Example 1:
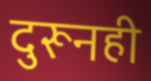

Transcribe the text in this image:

दुरूनही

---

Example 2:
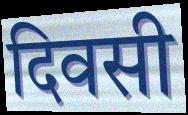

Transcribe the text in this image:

दिवसी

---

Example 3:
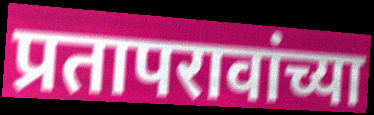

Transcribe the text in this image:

प्रतापरावांच्या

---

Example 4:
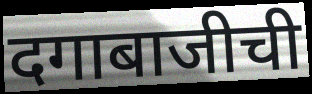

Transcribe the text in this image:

दगाबाजीची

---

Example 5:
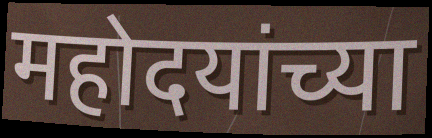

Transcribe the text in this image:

महोदयांच्या